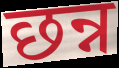
छन्न